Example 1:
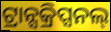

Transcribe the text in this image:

ଟ୍ରାନ୍ସକ୍ରିପ୍ସନଲ୍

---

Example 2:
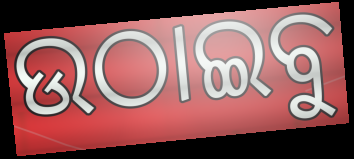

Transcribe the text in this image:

ଉଠାଇବୁ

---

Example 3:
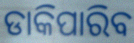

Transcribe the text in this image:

ଡାକିପାରିବ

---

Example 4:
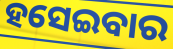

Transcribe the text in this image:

ହସେଇବାର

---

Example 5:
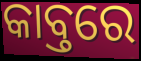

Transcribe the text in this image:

କାବ୍ତରେ